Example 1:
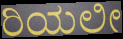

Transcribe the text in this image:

ರಿಯಲೀ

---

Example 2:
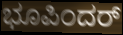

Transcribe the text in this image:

ಭೂಪಿಂದರ್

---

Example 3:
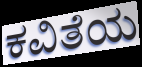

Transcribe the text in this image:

ಕವಿತೆಯ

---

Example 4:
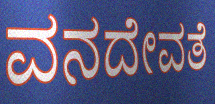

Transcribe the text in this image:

ವನದೇವತೆ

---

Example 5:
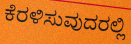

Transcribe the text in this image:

ಕೆರಳಿಸುವುದರಲ್ಲಿ